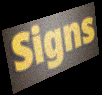
Signs